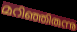
മറിഞ്ഞിരുന്നു